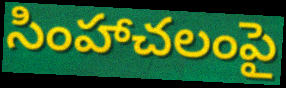
సింహాచలంపై